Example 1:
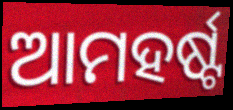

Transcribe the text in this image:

ଆମହର୍ଷ୍ଟ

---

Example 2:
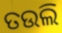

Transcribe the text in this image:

ତଉଲି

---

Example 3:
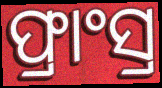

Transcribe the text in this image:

ଫ୍ରାଂସ୍ର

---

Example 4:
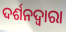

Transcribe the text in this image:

ଦର୍ଶନଦ୍ୱାରା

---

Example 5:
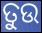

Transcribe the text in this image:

ତୁଉ